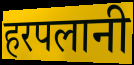
हरपलानी